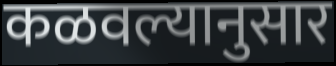
कळवल्यानुसार